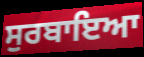
ਸੁਰਬਾਇਆ